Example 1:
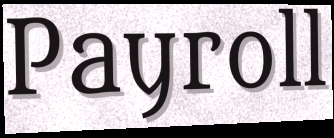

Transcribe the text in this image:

Payroll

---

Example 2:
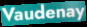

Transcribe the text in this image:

Vaudenay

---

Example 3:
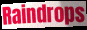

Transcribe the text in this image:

Raindrops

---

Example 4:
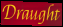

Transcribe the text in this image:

Draught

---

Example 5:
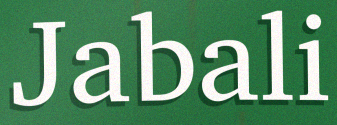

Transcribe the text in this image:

Jabali